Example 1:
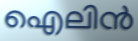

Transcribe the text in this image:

ഐലിൻ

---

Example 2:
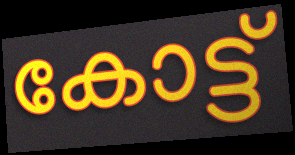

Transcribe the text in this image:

കോട്ട്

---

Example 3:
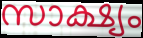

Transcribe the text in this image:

സാക്ഷ്യം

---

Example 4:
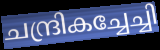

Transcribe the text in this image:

ചന്ദ്രികച്ചേച്ചി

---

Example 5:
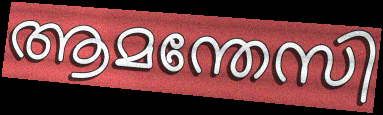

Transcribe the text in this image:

ആമന്തേസി